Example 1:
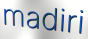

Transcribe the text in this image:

madiri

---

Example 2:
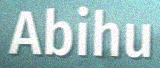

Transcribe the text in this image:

Abihu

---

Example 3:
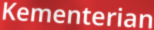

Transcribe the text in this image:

Kementerian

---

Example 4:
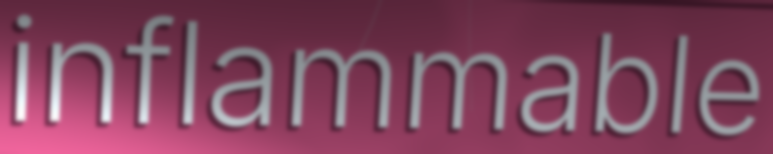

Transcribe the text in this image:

inflammable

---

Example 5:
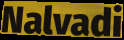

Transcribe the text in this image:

Nalvadi